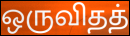
ஒருவிதத்